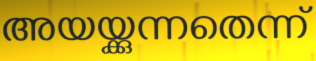
അയയ്ക്കുന്നതെന്ന്